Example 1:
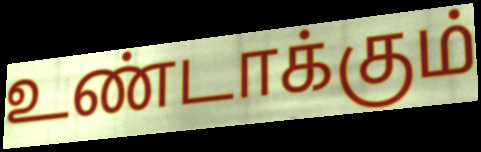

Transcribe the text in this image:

உண்டாக்கும்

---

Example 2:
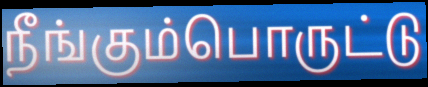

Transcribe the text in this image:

நீங்கும்பொருட்டு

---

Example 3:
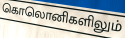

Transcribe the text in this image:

கொலொனிகளிலும்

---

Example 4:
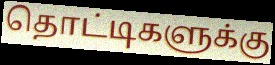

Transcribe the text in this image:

தொட்டிகளுக்கு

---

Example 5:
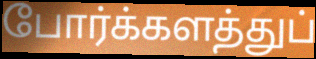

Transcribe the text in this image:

போர்க்களத்துப்